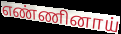
எண்ணினாய்